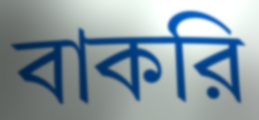
বাকরি